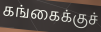
கங்கைக்குச்